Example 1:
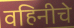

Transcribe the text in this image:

वहिनीचे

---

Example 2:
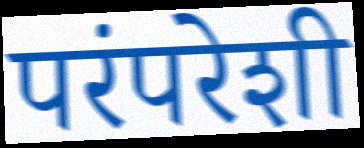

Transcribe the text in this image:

परंपरेशी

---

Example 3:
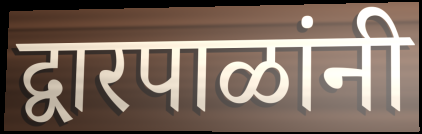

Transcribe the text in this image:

द्वारपाळांनी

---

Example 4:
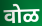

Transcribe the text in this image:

वोळ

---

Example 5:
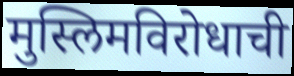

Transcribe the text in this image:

मुस्लिमविरोधाची